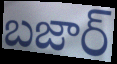
బజార్